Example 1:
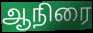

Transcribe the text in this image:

ஆநிரை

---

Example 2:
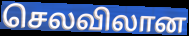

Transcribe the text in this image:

செலவிலான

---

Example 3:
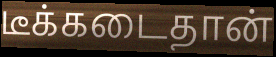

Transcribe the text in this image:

டீக்கடைதான்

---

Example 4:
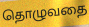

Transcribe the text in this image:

தொழுவதை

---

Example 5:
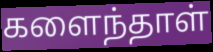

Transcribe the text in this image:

களைந்தாள்